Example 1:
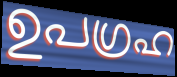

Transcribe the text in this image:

ഉപഗ്രഹ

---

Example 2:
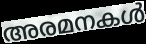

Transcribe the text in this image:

അരമനകൾ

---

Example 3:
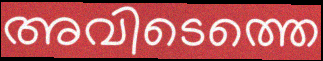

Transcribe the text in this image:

അവിടെത്തെ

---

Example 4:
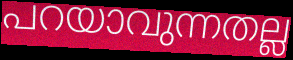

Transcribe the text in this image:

പറയാവുന്നതല്ല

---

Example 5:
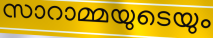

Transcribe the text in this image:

സാറാമ്മയുടെയും